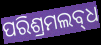
ପରିଶ୍ରମଲବ୍‍ଧ